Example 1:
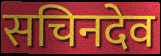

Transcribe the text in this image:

सचिनदेव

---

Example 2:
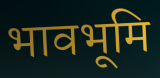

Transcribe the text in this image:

भावभूमि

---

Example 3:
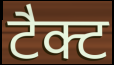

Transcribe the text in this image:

टैक्ट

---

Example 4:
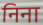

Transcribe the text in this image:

निना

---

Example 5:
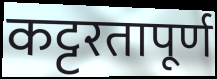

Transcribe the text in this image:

कट्टरतापूर्ण